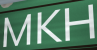
MKH